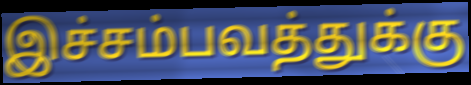
இச்சம்பவத்துக்கு